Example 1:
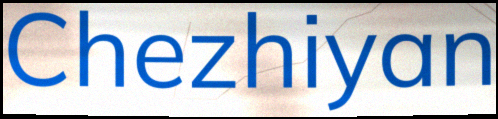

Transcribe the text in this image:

Chezhiyan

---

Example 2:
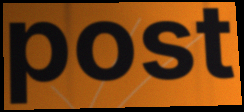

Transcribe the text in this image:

post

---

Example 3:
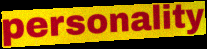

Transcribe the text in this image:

personality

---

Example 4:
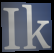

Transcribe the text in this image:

Ik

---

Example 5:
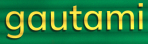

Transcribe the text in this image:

gautami